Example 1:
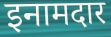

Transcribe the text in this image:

इनामदार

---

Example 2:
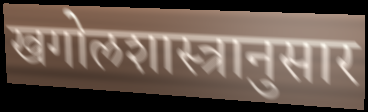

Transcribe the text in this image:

खगोलशास्त्रानुसार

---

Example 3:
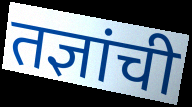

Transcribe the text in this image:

तज्ञांची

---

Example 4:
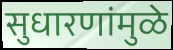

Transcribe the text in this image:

सुधारणांमुळे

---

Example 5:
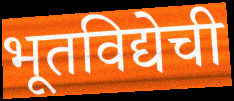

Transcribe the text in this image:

भूतविद्येची